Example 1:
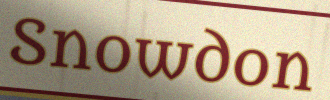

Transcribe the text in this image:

Snowdon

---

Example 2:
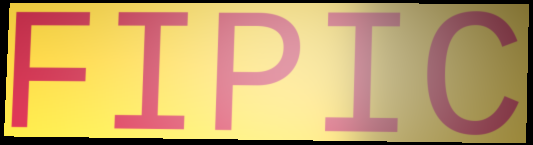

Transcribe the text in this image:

FIPIC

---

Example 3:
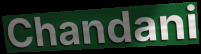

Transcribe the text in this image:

Chandani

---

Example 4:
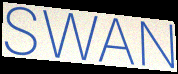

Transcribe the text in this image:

SWAN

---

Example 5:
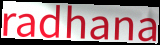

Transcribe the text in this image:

radhana